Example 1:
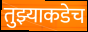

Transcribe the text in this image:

तुझ्याकडेच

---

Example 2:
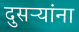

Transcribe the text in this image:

दुसऱ्यांना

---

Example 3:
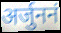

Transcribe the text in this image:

अर्जुननं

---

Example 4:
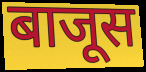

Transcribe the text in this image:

बाजूस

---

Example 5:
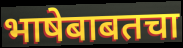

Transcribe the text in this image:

भाषेबाबतचा